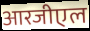
आरजीएल